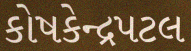
કોષકેન્દ્રપટલ